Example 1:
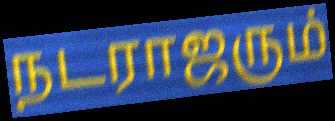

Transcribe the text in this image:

நடராஜரும்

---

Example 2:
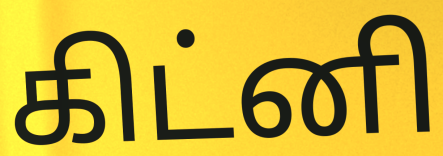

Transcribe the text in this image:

கிட்னி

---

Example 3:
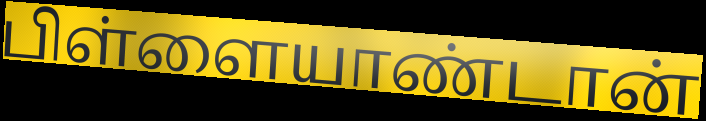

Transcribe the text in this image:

பிள்ளையாண்டான்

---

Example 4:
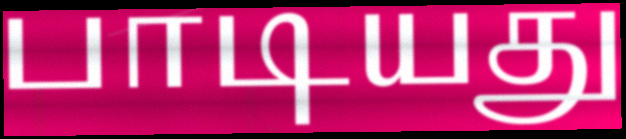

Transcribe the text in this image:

பாடியது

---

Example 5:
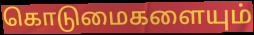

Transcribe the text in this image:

கொடுமைகளையும்